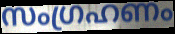
സംഗ്രഹണം